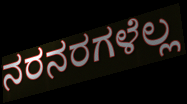
ನರನರಗಳೆಲ್ಲ